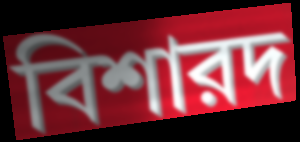
বিশারদ